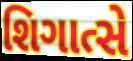
શિગાત્સે